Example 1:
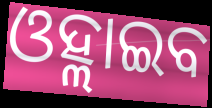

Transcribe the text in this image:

ଓହ୍ଲାଇବ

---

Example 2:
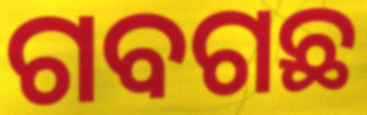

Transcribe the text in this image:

ଗବଗଛ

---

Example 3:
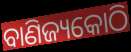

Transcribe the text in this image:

ବାଣିଜ୍ୟକୋଠି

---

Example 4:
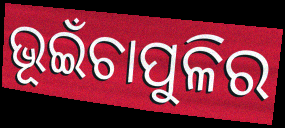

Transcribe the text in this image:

ଭୂଇଁଚାପୁଳିର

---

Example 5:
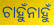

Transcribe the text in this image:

ଚାହୁଁନାହୁଁ